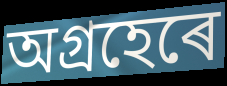
অগ্ৰহেৰে